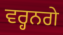
ਵਰ੍ਹਨਗੇ